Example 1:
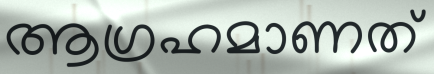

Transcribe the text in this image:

ആഗ്രഹമാണത്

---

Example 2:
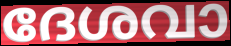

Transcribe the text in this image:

ദേശവാ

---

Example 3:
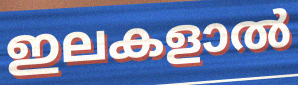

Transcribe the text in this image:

ഇലകളാൽ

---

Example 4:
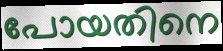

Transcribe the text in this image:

പോയതിനെ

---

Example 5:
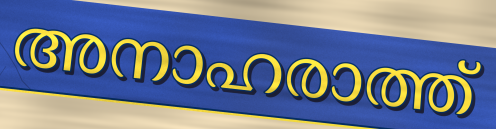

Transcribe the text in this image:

അനാഹരാത്ത്